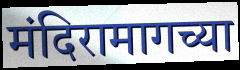
मंदिरामागच्या